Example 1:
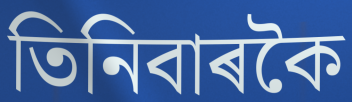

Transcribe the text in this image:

তিনিবাৰকৈ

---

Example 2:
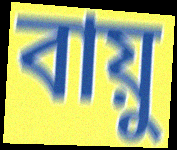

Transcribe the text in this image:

বায়ু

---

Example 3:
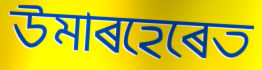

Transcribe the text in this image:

উমাৰহেৰেত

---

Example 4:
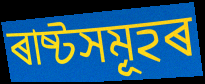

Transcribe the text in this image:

ৰাষ্টসমূহৰ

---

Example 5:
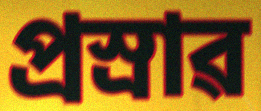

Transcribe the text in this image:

প্ৰস্ৰাৱ